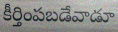
కీర్తింపబడేవాడూ